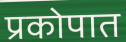
प्रकोपात